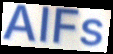
AIFs